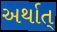
અર્થાત્